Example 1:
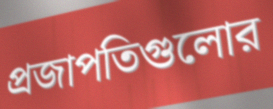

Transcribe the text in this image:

প্রজাপতিগুলোর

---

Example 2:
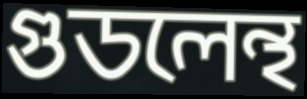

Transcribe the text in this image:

গুডলেন্থ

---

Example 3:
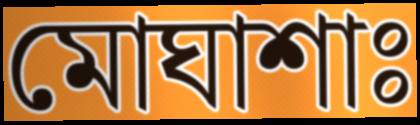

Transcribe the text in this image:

মোঘাশাঃ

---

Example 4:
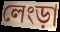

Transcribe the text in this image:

লেংড়া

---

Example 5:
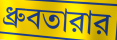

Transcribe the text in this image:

ধ্রুবতারার